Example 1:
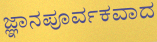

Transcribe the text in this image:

ಜ್ಞಾನಪೂರ್ವಕವಾದ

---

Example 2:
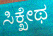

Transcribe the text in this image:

ಸಿಕ್ಖೇಥ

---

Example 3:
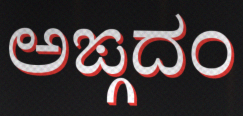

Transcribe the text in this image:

ಅಙ್ಗದಂ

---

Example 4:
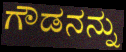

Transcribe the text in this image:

ಗೌಡನನ್ನು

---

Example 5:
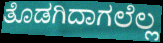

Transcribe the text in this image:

ತೊಡಗಿದಾಗಲೆಲ್ಲ